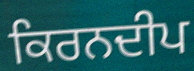
ਕਿਰਨਦੀਪ